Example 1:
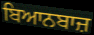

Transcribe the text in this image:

ਬਿਆਨਬਾਜ਼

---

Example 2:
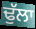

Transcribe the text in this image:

ਢੁੱਲਾ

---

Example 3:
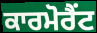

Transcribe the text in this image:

ਕਾਰਮੋਰੈਂਟ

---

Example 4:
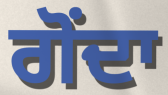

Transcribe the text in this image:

ਗੋਂਦਾ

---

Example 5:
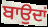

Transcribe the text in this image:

ਬਾਉਦਾਂ